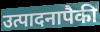
उत्पादनापैकी